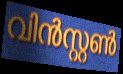
വിൻസ്റ്റൺ